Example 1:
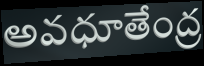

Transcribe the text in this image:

అవధూతేంద్ర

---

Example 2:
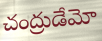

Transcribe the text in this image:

చంద్రుడేమో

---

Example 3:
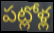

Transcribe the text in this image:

పట్లోళ్ల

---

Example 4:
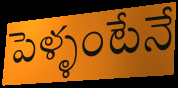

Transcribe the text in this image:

పెళ్ళంటేనే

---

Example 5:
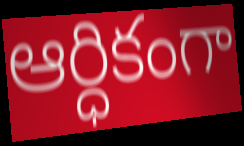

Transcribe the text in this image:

ఆర్ధికంగా